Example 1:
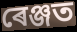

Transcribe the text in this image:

ৰেঞ্জত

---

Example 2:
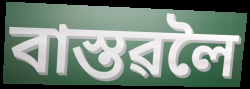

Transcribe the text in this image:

বাস্তৱলৈ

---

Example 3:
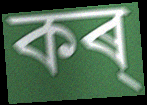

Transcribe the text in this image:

কৰ্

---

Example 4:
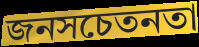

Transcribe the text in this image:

জনসচেতনতা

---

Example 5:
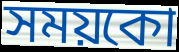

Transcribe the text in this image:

সময়কো